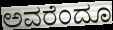
ಅವರೆಂದೂ